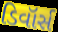
ડિવૉર્સ